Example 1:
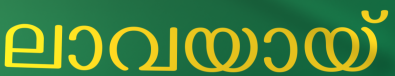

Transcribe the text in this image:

ലാവയായ്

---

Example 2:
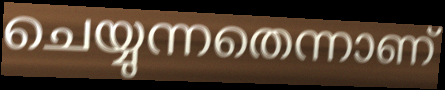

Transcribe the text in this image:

ചെയ്യുന്നതെന്നാണ്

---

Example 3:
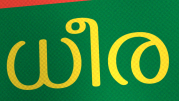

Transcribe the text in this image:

ധീര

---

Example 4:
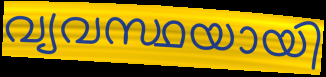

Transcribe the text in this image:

വ്യവസ്ഥയായി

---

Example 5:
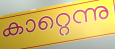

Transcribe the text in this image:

കാറ്റെന്നു